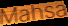
Mahsa